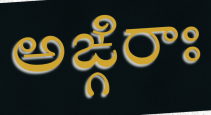
అఙ్గిరాః